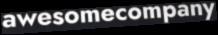
awesomecompany